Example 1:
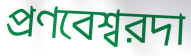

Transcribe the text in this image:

প্রণবেশ্বরদা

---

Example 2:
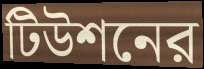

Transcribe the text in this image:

টিউশনের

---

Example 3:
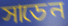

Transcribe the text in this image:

সাডেন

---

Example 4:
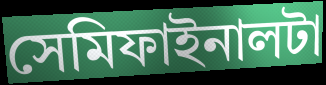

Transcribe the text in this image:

সেমিফাইনালটা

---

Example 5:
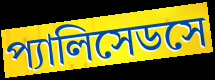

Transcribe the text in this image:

প্যালিসেডসে